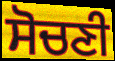
ਸੋਚਣੀ